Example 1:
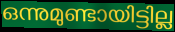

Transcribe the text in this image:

ഒന്നുമുണ്ടായിട്ടില്ല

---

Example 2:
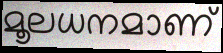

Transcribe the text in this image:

മൂലധനമാണ്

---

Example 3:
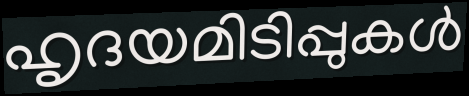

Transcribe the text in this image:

ഹൃദയമിടിപ്പുകൾ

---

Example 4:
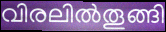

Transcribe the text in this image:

വിരലിൽതൂങ്ങി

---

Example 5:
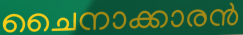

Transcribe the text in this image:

ചൈനാക്കാരൻ